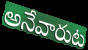
అనేవారుట